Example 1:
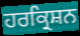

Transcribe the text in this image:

ਹਰਕ੍ਰਿਸ਼ਨ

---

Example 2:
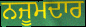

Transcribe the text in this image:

ਨਜੂਮਦਾਰ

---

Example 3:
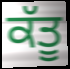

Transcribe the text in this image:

ਕੱਤੂ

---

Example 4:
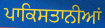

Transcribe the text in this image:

ਪਾਕਿਸਤਾਨੀਆਂ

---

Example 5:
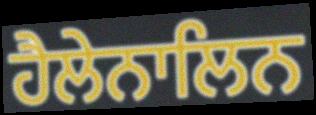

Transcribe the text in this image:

ਹੈਲੇਨਾਲਿਨ